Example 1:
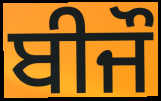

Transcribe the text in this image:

ਬੀਜੌ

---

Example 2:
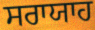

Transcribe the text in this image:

ਸਰਾਯਾਹ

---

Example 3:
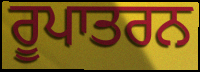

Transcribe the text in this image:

ਰੂਪਾਤਰਨ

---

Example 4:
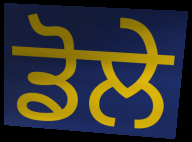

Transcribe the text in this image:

ਡੋਲੇ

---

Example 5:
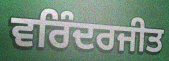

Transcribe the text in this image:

ਵਰਿੰਦਰਜੀਤ